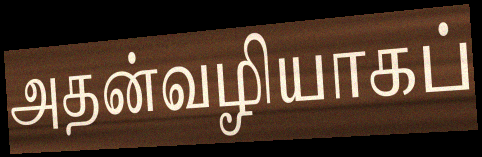
அதன்வழியாகப்